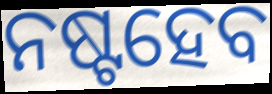
ନଷ୍ଟହେବ